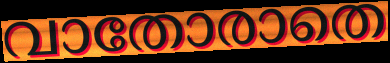
വാതോരാതെ